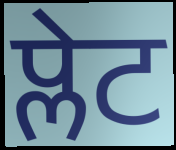
प्लेट